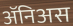
ॲनिअस